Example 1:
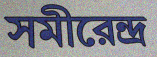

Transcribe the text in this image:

সমীরেন্দ্র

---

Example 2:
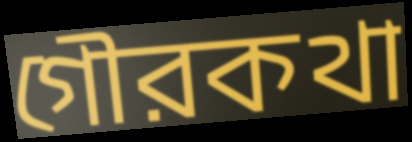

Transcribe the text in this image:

গৌরকথা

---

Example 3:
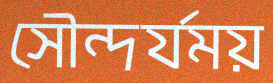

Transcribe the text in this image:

সৌন্দর্যময়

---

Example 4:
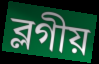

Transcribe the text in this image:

ব্লগীয়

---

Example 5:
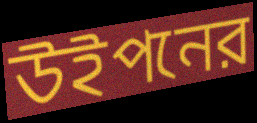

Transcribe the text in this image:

উইপনের